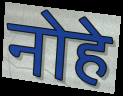
नोहे